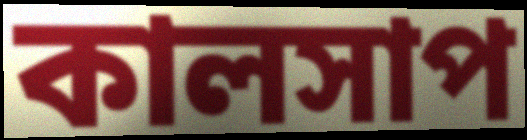
কালসাপ